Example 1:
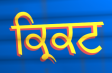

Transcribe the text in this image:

ਕ੍ਰਿਕਟ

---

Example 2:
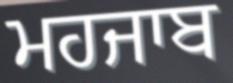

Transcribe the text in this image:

ਮਹਜਾਬ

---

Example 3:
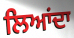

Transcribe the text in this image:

ਲਿਆਂਦਾ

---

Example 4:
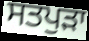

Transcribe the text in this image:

ਸਤਪੁੜਾ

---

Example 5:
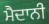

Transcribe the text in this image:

ਮੈਦਾਨੀ